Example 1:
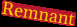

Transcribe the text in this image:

Remnant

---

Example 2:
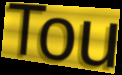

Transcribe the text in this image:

Tou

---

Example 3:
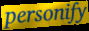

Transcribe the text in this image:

personify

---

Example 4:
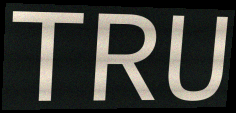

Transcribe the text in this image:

TRU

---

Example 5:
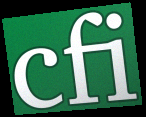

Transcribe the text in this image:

cfi